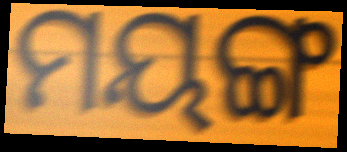
ମୟଙ୍ଗ